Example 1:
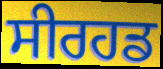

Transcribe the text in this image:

ਸੀਰਹਡ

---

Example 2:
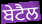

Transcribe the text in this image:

ਬੇਟੈਲ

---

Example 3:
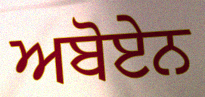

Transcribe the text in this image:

ਅਬੋਏਨ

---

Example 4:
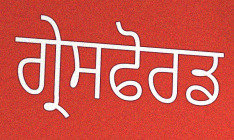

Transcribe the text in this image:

ਗ੍ਰੇਸਫੋਰਡ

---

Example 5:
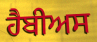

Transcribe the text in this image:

ਹੈਬੀਅਸ